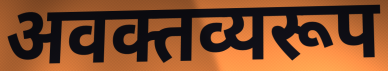
अवक्तव्यरूप